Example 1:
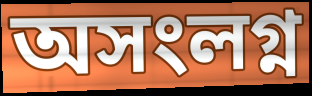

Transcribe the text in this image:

অসংলগ্ন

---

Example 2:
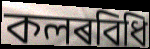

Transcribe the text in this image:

কলৰবিধি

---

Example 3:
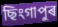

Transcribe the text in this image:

ছিংগাপুৰ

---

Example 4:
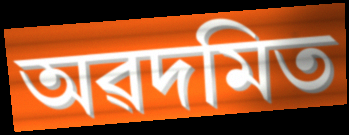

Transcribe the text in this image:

অৱদমিত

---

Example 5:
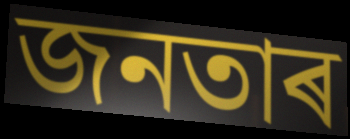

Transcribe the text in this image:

জনতাৰ